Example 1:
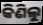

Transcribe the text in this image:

କିଣିଲୁ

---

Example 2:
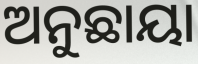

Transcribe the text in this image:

ଅନୁଛାୟା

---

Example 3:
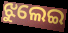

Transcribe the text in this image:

ଝୁଲେଇ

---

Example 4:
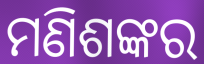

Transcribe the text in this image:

ମଣିଶଙ୍କର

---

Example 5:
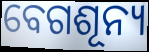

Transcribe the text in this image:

ବେଗଶୂନ୍ୟ